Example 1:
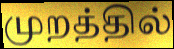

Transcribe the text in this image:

முறத்தில்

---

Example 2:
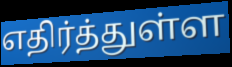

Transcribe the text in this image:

எதிர்த்துள்ள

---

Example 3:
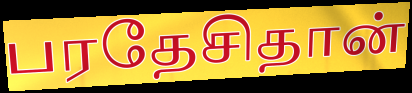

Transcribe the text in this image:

பரதேசிதான்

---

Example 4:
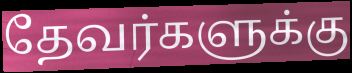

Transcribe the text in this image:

தேவர்களுக்கு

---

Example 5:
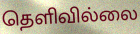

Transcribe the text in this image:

தெளிவில்லை